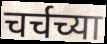
चर्चच्या